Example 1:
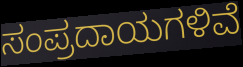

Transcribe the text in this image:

ಸಂಪ್ರದಾಯಗಳಿವೆ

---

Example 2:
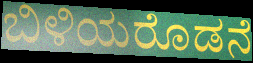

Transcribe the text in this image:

ಬಿಳಿಯರೊಡನೆ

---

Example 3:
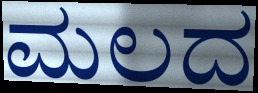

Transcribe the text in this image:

ಮಲದ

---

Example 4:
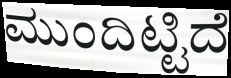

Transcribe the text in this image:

ಮುಂದಿಟ್ಟಿದೆ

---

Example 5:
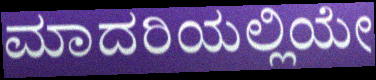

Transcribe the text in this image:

ಮಾದರಿಯಲ್ಲಿಯೇ